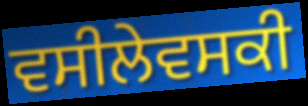
ਵਸੀਲੇਵਸਕੀ